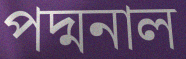
পদ্মনাল